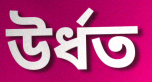
উৰ্ধত